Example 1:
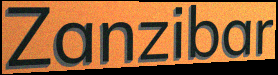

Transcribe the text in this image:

Zanzibar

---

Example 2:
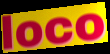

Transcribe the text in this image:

loco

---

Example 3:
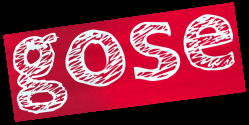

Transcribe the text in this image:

gose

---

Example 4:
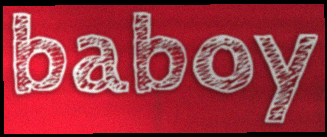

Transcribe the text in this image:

baboy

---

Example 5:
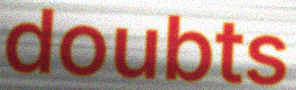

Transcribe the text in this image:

doubts